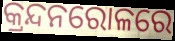
କ୍ରନ୍ଦନରୋଳରେ